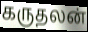
கருதலன்